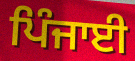
ਪਿੰਜਾਈ